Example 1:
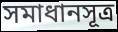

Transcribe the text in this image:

সমাধানসূত্র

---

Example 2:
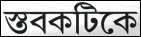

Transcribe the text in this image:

স্তবকটিকে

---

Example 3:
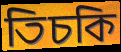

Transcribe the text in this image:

তিচকি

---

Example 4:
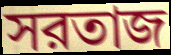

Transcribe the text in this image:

সরতাজ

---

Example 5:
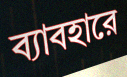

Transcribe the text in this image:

ব্যাবহারে